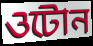
ওটোন